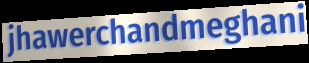
jhawerchandmeghani